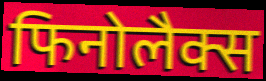
फिनोलैक्स